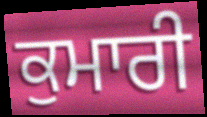
ਕੁਮਾਰੀ